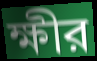
ক্ষীর